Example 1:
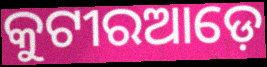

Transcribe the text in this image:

କୁଟୀରଆଡ଼େ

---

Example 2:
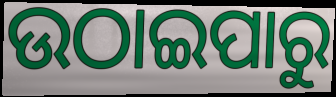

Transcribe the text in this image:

ଉଠାଇପାରୁ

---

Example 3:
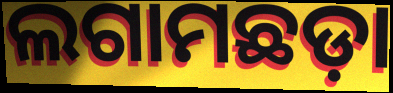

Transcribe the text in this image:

ଲଗାମଛଡ଼ା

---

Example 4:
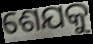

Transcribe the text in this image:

ଶେଯକୁ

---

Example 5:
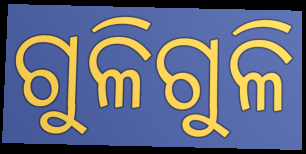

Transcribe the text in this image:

ଗୁଳିଗୁଳି